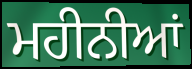
ਮਹੀਨੀਆਂ